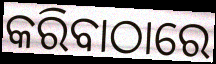
କରିବାଠାରେ